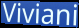
Viviani